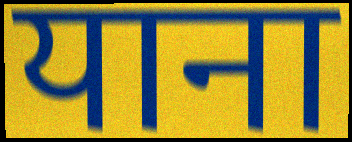
याना